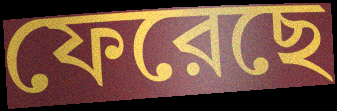
ফেরেছে